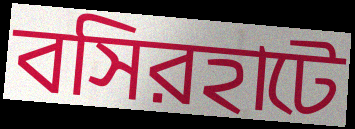
বসিরহাটে